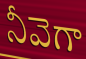
నీవెగా